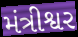
મંત્રીશ્વર